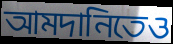
আমদানিতেও